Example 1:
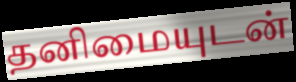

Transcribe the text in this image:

தனிமையுடன்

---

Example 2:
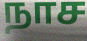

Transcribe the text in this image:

நாச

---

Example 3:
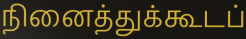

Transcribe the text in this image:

நினைத்துக்கூடப்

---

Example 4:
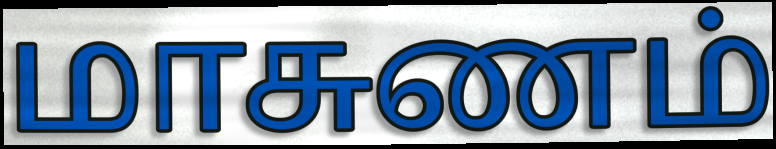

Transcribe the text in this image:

மாசுணம்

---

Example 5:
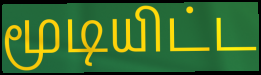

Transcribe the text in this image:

மூடியிட்ட